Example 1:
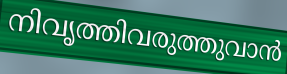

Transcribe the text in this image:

നിവൃത്തിവരുത്തുവാൻ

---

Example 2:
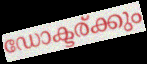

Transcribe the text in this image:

ഡോക്ടര്ക്കും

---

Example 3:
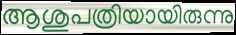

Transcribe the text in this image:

ആശുപത്രിയായിരുന്നു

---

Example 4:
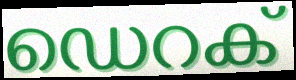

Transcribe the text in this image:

ഡെറക്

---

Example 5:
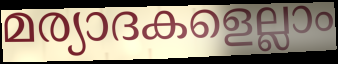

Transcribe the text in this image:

മര്യാദകളെല്ലാം